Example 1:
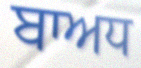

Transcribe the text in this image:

ਬਾਅਧ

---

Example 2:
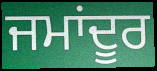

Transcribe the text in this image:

ਜਮਾਂਦੂਰ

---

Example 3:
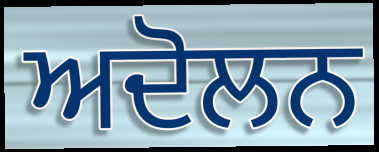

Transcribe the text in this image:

ਅਦੋਲਨ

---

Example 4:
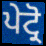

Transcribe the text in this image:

ਪੇਟ੍ਰੋ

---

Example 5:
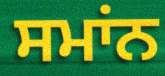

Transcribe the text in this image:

ਸਮਾਂਨ